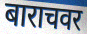
बाराचवर